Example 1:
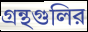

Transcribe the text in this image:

গ্রন্থগুলির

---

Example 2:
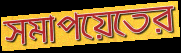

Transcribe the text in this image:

সমাপয়েতের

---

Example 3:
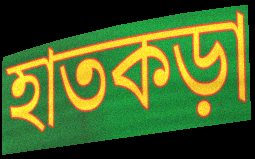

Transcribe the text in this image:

হাতকড়া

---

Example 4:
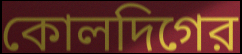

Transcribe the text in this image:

কোলদিগের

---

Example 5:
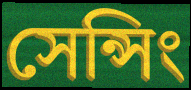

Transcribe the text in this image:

সেন্সিং